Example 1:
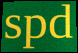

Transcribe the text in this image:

spd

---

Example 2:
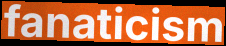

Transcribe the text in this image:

fanaticism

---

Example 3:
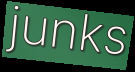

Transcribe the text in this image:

junks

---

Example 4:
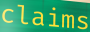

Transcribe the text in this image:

claims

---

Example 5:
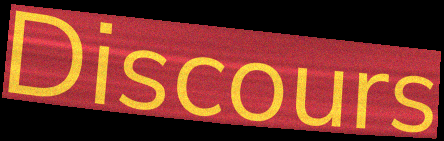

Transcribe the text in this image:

Discours